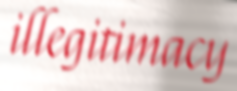
illegitimacy